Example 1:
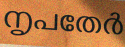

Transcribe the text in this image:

നൃപതേർ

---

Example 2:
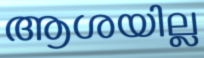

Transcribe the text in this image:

ആശയില്ല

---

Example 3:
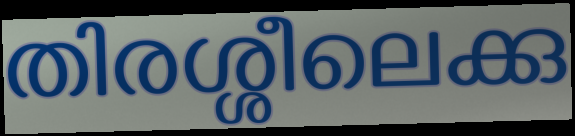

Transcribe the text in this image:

തിരശ്ശീലെക്കു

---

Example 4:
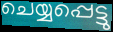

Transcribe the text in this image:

ചെയ്യപ്പെട്ടു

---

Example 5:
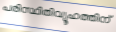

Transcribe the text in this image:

പരിസ്ഥിതിവ്യൂഹത്തിന്